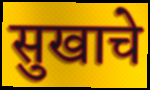
सुखाचे